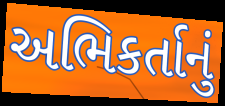
અભિકર્તાનું